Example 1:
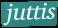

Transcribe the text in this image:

juttis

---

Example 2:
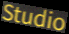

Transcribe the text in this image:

Studio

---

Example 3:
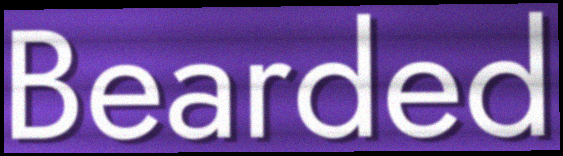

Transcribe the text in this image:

Bearded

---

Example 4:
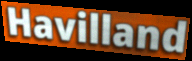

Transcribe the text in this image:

Havilland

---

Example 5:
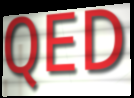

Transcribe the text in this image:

QED